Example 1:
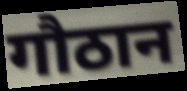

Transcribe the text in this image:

गौठान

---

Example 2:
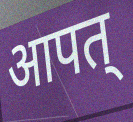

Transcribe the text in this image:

आपत्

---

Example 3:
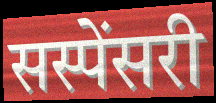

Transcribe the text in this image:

सस्पेंसरी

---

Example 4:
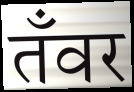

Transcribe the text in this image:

तँवर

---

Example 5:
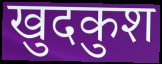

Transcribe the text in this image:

खुदकुश